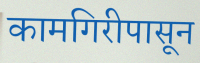
कामगिरीपासून